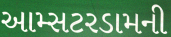
આમ્સટરડામની